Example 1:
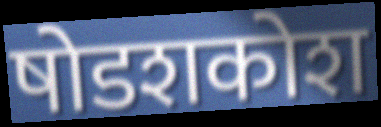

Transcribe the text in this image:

षोडशकोश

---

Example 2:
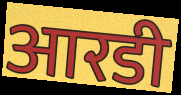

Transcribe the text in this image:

आरडी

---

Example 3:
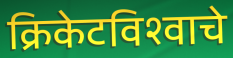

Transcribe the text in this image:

क्रिकेटविश्वाचे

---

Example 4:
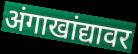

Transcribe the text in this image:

अंगाखांद्यावर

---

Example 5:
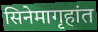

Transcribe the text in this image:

सिनेमागृहांत